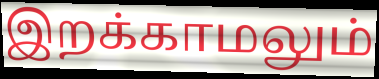
இறக்காமலும்